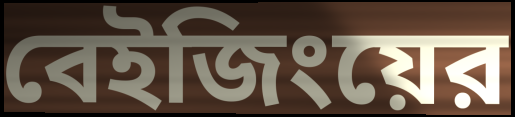
বেইজিংয়ের